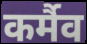
कर्मैव